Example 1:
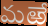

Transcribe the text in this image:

మఱే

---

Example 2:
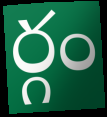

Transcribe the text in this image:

ర్గం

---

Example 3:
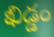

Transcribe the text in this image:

ఖిడ్డం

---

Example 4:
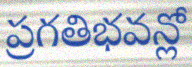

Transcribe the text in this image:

ప్రగతిభవన్లో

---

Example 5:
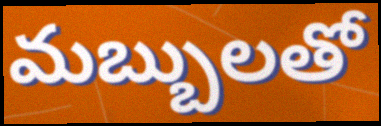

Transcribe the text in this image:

మబ్బులతో